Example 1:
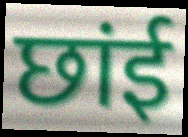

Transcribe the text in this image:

छांई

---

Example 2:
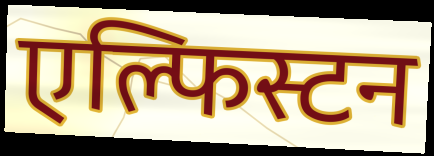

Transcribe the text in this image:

एल्फिस्टन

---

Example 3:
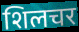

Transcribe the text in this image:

शिलचर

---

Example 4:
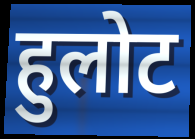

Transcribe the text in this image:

हुलोट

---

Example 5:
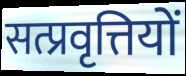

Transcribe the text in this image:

सत्प्रवृत्तियों